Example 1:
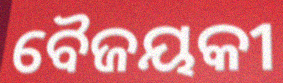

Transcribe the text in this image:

ବୈଜୟକୀ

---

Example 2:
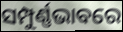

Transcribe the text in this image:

ସମ୍ପୁର୍ଣ୍ଣଭାବରେ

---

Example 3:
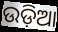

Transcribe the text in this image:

ଉଡ଼ିଆ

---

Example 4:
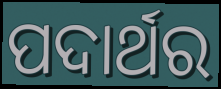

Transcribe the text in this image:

ପଦାର୍ଥର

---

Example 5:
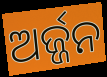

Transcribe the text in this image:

ଅର୍ଜ୍ଜନ